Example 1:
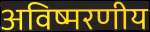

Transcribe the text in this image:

अविष्मरणीय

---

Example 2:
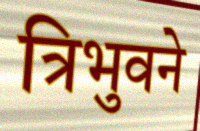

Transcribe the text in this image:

त्रिभुवने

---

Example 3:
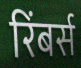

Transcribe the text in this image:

रिंबर्स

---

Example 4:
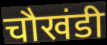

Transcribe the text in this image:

चौखंडी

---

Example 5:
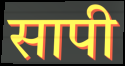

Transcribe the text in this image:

सापी